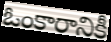
ఓంకారానికీ